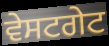
ਵੇਸਟਗੇਟ